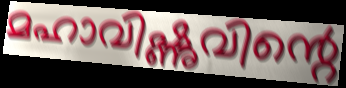
മഹാവിഷ്ണുവിന്റെ